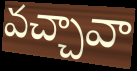
వచ్చావా